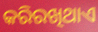
କରିରଖିଥାଏ